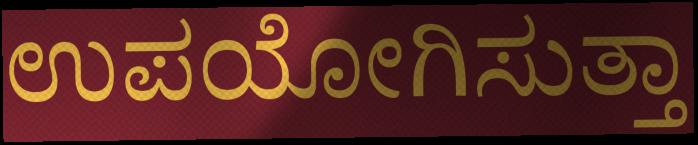
ಉಪಯೋಗಿಸುತ್ತಾ